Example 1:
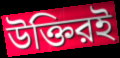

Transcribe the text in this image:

উক্তিরই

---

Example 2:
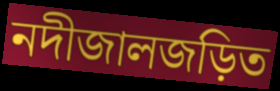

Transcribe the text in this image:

নদীজালজড়িত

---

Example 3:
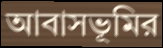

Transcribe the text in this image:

আবাসভূমির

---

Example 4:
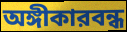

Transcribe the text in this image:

অঙ্গীকারবন্ধ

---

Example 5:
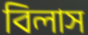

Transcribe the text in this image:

বিলাস